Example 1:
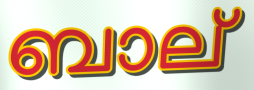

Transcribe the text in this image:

ബാല്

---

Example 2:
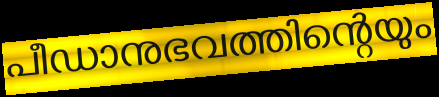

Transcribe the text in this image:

പീഡാനുഭവത്തിന്റെയും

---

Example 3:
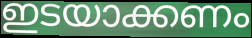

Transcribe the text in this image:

ഇടയാക്കണം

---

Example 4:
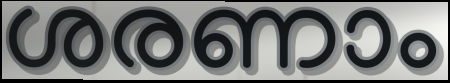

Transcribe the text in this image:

ശരണാം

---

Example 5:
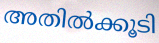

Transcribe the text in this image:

അതിൽക്കൂടി